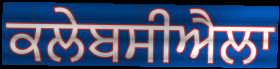
ਕਲੇਬਸੀਐਲਾ